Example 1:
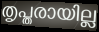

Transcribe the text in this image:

തൃപ്തരായില്ല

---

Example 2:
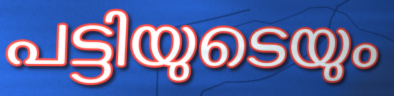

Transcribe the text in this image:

പട്ടിയുടെയും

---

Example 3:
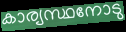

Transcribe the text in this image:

കാര്യസ്ഥനോടു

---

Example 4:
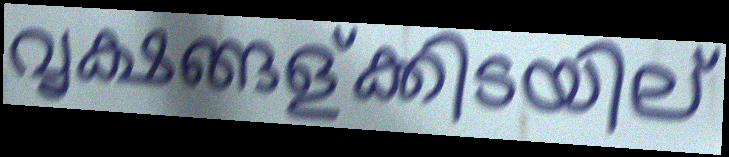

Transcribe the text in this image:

വൃക്ഷങ്ങള്ക്കിടയില്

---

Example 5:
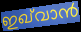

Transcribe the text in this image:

ഇഖ്‌വാൻ